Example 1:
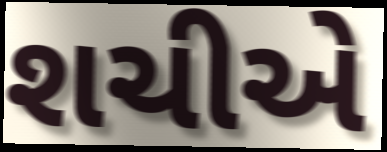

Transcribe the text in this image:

શચીએ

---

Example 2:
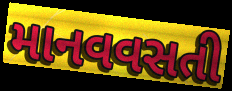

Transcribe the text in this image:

માનવવસતી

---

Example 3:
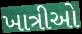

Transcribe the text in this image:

ખાત્રીઓ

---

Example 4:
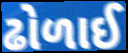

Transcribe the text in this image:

ઢોળાઈ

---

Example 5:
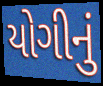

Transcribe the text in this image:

યોગીનું